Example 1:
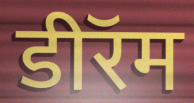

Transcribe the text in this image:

डीरॅम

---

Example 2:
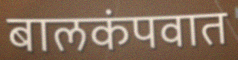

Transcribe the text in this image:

बालकंपवात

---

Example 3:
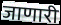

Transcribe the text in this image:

जाणारी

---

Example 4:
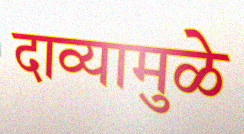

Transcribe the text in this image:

दाव्यामुळे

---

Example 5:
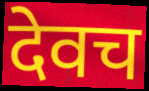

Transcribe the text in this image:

देवच